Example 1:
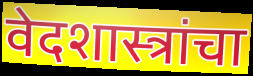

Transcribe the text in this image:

वेदशास्त्रांचा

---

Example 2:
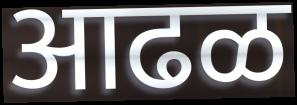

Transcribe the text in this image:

आढळ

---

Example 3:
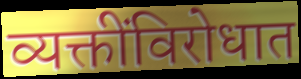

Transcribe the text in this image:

व्यक्तींविरोधात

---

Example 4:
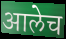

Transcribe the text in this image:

आलेच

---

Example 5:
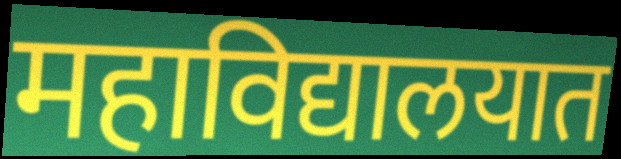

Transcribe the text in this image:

महाविद्यालयात